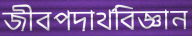
জীবপদার্থবিজ্ঞান